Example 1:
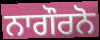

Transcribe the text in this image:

ਨਾਗੌਰਨੋ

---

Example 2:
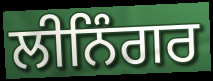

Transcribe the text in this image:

ਲੀਨਿੰਗਰ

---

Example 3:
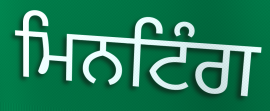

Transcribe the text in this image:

ਮਿਨਟਿੰਗ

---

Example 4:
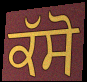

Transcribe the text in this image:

ਕੱਸੋ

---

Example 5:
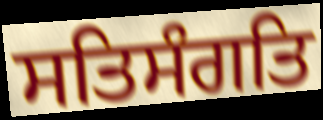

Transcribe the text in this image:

ਸਤਿਸੰਗਤਿ